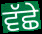
ਵੱਛੇ